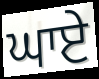
ਘਾਏ